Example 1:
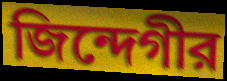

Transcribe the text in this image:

জিন্দেগীর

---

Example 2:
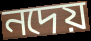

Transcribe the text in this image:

নদেয়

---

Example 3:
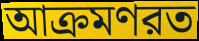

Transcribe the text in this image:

আক্রমণরত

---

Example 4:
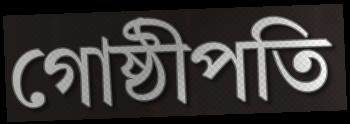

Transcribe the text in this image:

গোষ্ঠীপতি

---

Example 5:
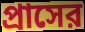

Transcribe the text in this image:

প্রাসের